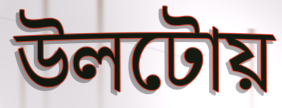
উলটোয়